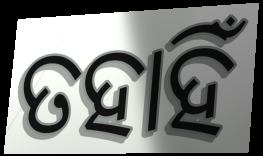
ତହାହିଁ